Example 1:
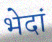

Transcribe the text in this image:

भेदां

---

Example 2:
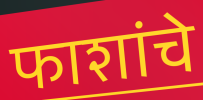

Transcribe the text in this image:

फाशांचे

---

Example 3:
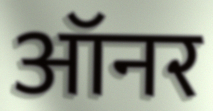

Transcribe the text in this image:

ऑनर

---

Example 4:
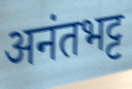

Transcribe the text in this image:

अनंतभट्ट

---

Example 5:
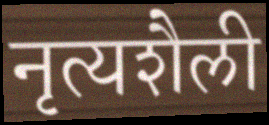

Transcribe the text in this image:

नृत्यशैली